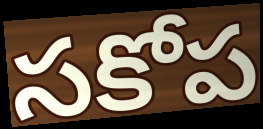
సకోప